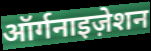
ऑर्गनाइज़ेशन